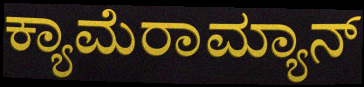
ಕ್ಯಾಮೆರಾಮ್ಯಾನ್